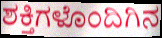
ಶಕ್ತಿಗಳೊಂದಿಗಿನ